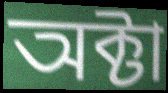
অক্টা